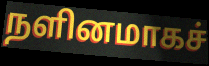
நளினமாகச்